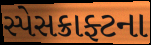
સ્પેસક્રાફ્ટના